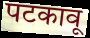
पटकावू